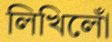
লিখিলোঁ